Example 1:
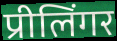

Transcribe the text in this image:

प्रीलिंगर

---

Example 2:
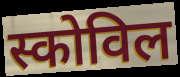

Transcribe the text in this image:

स्कोविल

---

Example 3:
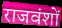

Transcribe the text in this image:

राजवंशों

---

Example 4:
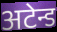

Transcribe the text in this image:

अटेन्ड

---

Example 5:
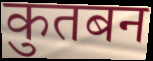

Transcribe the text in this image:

कुतबन